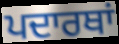
ਪਦਾਰਥਾਂ